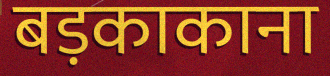
बड़काकाना